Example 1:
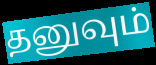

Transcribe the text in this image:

தனுவும்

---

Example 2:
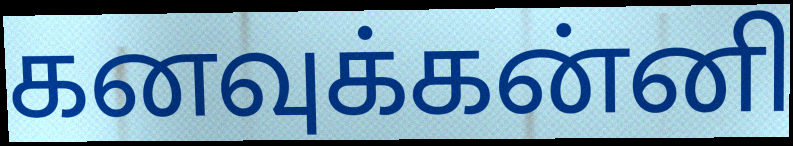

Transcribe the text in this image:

கனவுக்கன்னி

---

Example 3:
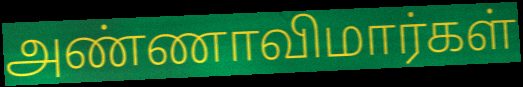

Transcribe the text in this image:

அண்ணாவிமார்கள்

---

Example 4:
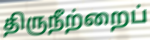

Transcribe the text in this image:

திருநீற்றைப்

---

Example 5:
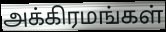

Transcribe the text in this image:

அக்கிரமங்கள்